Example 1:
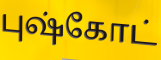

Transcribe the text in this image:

புஷ்கோட்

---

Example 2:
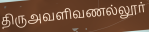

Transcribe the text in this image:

திருஅவளிவணல்லூர்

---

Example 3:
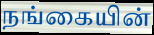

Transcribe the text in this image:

நங்கையின்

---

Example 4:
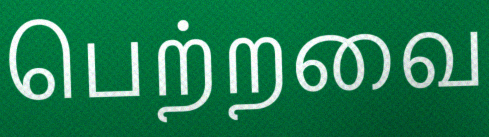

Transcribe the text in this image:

பெற்றவை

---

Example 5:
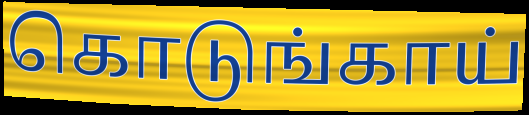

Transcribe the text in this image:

கொடுங்காய்